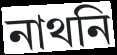
নাথনি